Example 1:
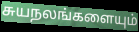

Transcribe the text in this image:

சுயநலங்களையும்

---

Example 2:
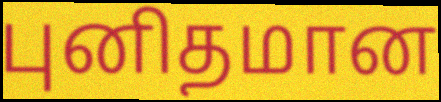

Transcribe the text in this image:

புனிதமான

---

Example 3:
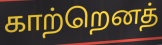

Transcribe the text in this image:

காற்றெனத்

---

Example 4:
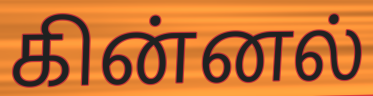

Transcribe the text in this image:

கின்னல்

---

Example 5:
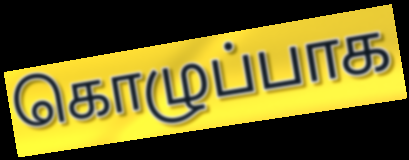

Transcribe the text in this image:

கொழுப்பாக